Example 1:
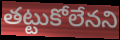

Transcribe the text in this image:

తట్టుకోలేనని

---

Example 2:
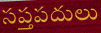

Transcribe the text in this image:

సప్తపదులు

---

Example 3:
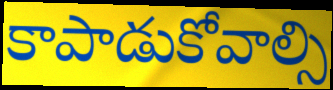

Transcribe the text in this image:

కాపాడుకోవాల్సి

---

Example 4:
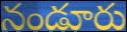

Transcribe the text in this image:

నండూరు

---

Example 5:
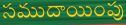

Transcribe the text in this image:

సముదాయింపు